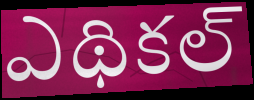
ఎథికల్